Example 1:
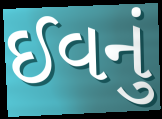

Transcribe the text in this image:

ઈવનું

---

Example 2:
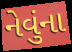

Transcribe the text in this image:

નેવુંના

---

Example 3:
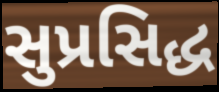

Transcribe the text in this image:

સુપ્રસિદ્ધ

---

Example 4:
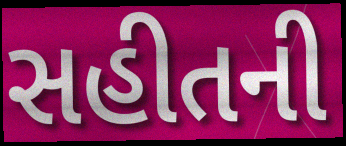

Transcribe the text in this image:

સહીતની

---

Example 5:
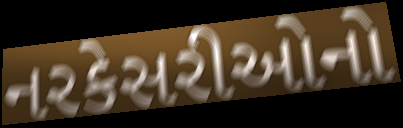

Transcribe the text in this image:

નરકેસરીઓનો